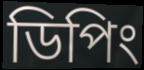
ডিপিং